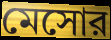
মেসোর